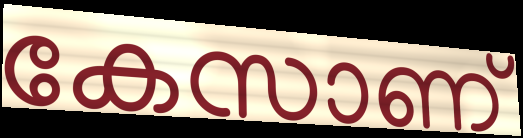
കേസാണ്